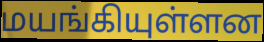
மயங்கியுள்ளன